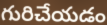
గురిచేయడం